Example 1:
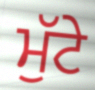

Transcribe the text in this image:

ਮੁੱਟੇ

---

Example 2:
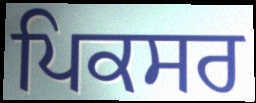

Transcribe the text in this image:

ਪਿਕਸਰ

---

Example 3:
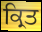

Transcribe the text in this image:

ਕ੍ਰਿਤ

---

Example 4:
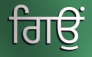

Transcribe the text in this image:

ਗਿਉਂ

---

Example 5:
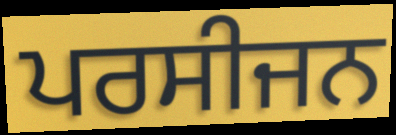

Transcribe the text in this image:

ਪਰਸੀਜਨ